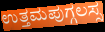
ಉತ್ತಮಪುಗ್ಗಲಸ್ಸ